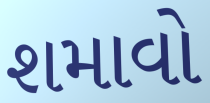
શમાવો